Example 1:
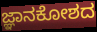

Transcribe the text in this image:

ಜ್ಞಾನಕೋಶದ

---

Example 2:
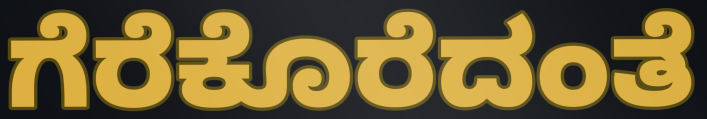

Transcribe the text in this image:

ಗೆರೆಕೊರೆದಂತೆ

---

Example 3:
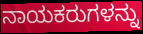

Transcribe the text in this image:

ನಾಯಕರುಗಳನ್ನು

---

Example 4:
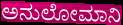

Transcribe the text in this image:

ಅನುಲೋಮಾನಿ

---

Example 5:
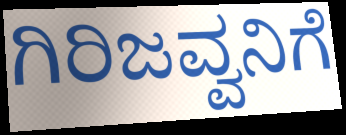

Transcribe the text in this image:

ಗಿರಿಜವ್ವನಿಗೆ